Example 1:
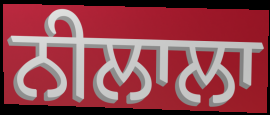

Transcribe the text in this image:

ਨੀਲਾਲਾ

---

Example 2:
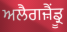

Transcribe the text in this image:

ਅਲੈਗਜ਼ੈਂਡ੍ਰੂ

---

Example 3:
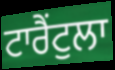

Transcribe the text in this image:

ਟਾਰੈਂਟੁਲਾ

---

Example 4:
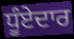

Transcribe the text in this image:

ਧੂੰਏਦਾਰ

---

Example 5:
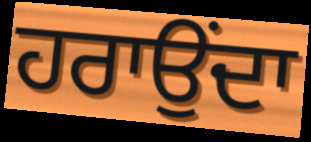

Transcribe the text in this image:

ਹਰਾਉਂਦਾ